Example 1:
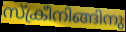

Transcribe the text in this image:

സ്ക്രീനിങ്ങിനു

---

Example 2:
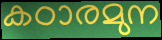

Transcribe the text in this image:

കഠാരമുന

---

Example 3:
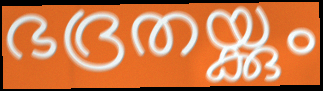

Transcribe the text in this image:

ഭദ്രതയ്ക്കും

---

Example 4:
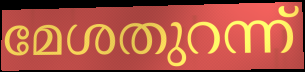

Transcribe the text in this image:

മേശതുറന്ന്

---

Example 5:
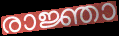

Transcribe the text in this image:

രാജ്ഞാ